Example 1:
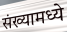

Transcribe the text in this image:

संख्यामध्ये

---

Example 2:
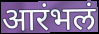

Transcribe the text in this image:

आरंभलं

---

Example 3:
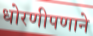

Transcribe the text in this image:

धोरणीपणाने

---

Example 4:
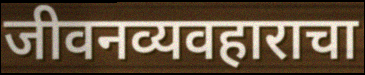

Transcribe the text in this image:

जीवनव्यवहाराचा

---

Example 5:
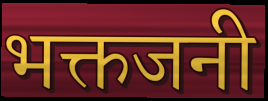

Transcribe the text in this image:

भक्तजनी